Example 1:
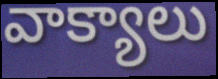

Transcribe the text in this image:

వాక్యాలు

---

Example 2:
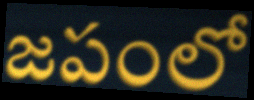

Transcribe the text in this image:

జపంలో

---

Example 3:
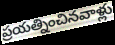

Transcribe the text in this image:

ప్రయత్నించినవాళ్లు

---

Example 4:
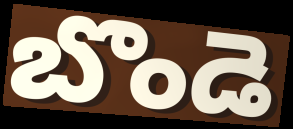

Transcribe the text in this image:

బొండె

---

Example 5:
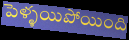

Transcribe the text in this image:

పెళ్ళయిపోయింది